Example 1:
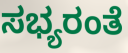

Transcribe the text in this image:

ಸಭ್ಯರಂತೆ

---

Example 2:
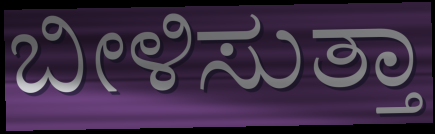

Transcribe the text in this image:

ಬೀಳಿಸುತ್ತಾ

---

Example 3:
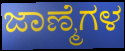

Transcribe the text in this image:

ಜಾಣ್ಮೆಗಳ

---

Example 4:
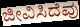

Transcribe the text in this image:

ಜೀವಿಸಿದೆವು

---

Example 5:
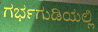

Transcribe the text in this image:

ಗರ್ಭಗುಡಿಯಲ್ಲಿ